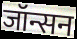
जॉन्सन